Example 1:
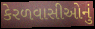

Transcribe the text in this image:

કેરળવાસીઓનું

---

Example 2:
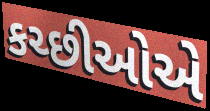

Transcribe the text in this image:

કચ્છીઓએ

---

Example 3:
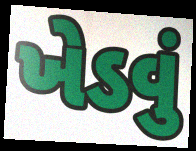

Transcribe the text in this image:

ખેડવું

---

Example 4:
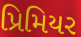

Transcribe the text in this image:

પ્રિમિયર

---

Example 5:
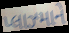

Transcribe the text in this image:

પ્લાઝ્માને